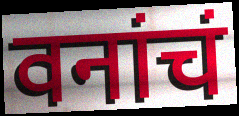
वनांचं